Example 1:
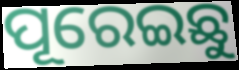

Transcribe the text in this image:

ପୂରେଇଛୁ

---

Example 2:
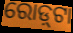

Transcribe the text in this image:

ରୋଡ଼୍‌ଟା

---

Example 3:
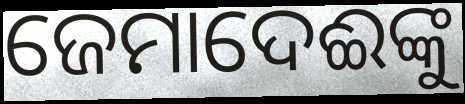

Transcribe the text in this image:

ଜେମାଦେଈଙ୍କୁ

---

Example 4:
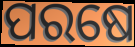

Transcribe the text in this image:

ପରଷେ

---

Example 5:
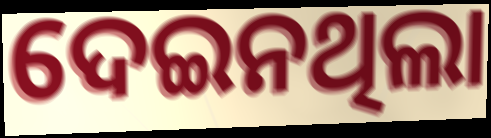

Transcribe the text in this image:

ଦେଇନଥିଲା